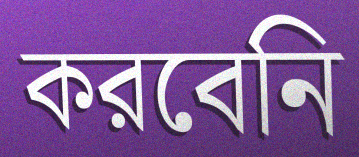
করবেনি